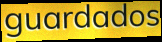
guardados